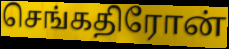
செங்கதிரோன்